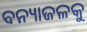
ବନ୍ୟାଜଳକୁ